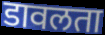
डावलता